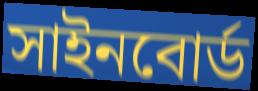
সাইনবোর্ড